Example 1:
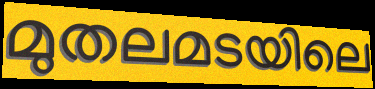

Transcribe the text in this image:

മുതലമടയിലെ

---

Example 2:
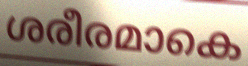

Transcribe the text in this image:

ശരീരമാകെ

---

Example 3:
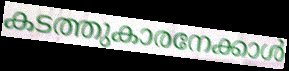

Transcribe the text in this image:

കടത്തുകാരനേക്കാൾ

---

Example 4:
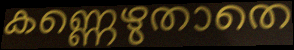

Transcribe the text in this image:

കണ്ണെഴുതാതെ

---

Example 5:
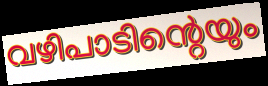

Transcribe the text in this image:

വഴിപാടിന്റെയും